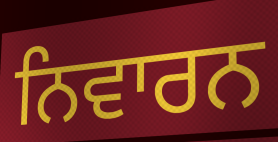
ਨਿਵਾਰਨ